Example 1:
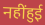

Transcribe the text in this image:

नहींहुई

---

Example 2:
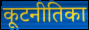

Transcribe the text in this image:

कूटनीतिका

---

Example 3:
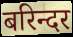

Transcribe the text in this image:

बरिन्दर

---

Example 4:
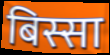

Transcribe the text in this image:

बिस्सा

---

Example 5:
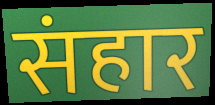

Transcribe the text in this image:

संहार